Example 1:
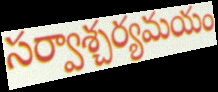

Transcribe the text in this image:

సర్వాశ్చర్యమయం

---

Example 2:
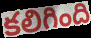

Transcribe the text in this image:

కలిగింది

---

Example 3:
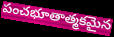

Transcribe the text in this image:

పంచభూతాత్మకమైన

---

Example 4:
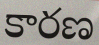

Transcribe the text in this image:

కారణ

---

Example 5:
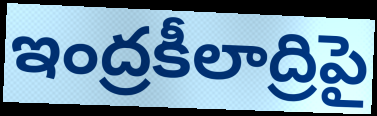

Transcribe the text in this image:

ఇంద్రకీలాద్రిపై